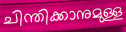
ചിന്തിക്കാനുമുള്ള